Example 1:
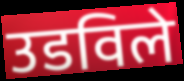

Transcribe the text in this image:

उडविले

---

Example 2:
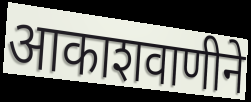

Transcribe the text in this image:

आकाशवाणीने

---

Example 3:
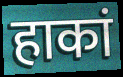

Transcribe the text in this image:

हाकां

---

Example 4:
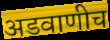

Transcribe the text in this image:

अडवाणीच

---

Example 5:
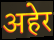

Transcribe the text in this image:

अहेर